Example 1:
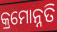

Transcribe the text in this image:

କ୍ରମୋନ୍ନତି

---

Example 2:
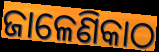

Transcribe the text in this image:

ଜାଳେଣିକାଠ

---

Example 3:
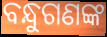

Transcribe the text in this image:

ବନ୍ଧୁଗଣଙ୍କ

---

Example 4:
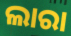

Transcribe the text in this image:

ଲାରା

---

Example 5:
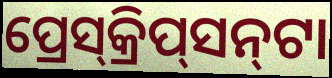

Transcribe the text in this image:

ପ୍ରେସ୍‌କ୍ରିପ୍‌ସନ୍‌ଟା